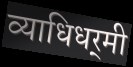
व्याधिधर्मी